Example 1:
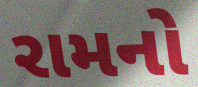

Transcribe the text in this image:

રામનો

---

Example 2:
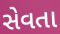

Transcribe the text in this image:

સેવતા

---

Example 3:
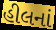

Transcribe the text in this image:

હીલનાં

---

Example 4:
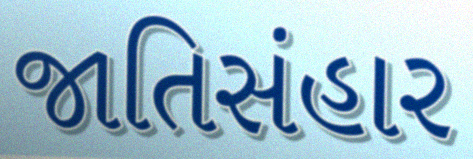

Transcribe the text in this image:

જાતિસંહાર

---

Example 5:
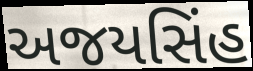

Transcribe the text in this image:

અજયસિંહ